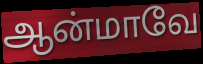
ஆன்மாவே